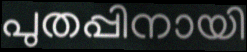
പുതപ്പിനായി